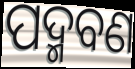
ପଦ୍ମବଣ